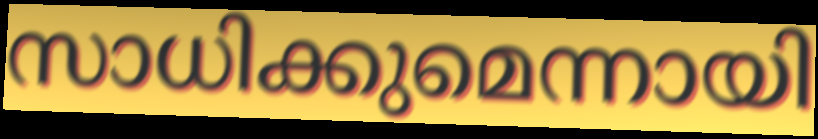
സാധിക്കുമെന്നായി